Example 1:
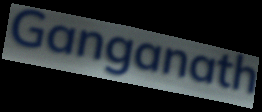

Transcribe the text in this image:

Ganganath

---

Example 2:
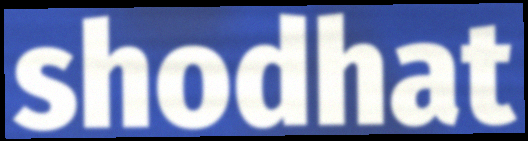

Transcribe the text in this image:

shodhat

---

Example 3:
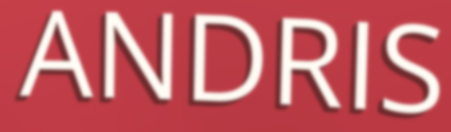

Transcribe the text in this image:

ANDRIS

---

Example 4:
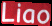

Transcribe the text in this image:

Liao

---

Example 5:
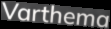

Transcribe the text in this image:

Varthema